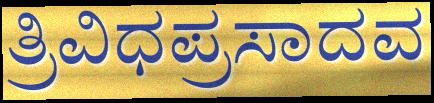
ತ್ರಿವಿಧಪ್ರಸಾದವ